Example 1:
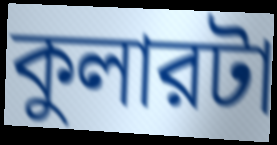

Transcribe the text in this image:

কুলারটা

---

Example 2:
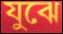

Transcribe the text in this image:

যুঝে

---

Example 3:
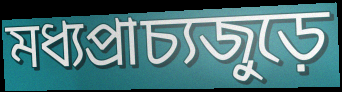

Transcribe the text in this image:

মধ্যপ্রাচ্যজুড়ে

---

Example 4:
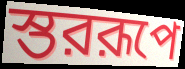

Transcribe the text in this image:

স্তররূপে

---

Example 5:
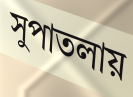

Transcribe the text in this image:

সুপাতলায়